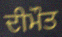
ਦੀਮੌਤ